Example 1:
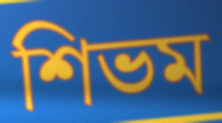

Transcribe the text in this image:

শিভম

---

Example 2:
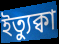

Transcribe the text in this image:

ইত্যুক্বা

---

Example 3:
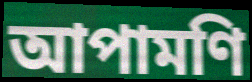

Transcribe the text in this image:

আপামণি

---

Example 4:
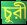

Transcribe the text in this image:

চুরী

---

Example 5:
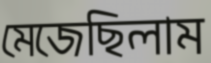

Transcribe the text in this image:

মেজেছিলাম